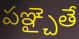
పఞ్చైతే